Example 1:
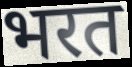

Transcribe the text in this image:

भरत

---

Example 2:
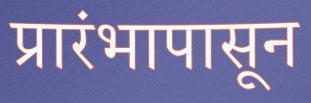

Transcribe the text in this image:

प्रारंभापासून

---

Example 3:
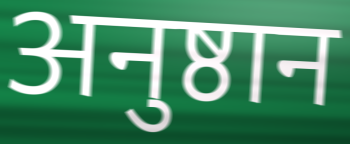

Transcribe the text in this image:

अनुष्ठान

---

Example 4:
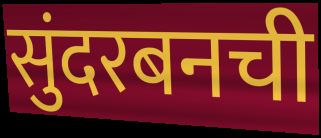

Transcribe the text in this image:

सुंदरबनची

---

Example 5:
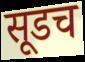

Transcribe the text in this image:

सूडच